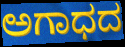
ಅಗಾಧದ